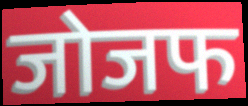
जोजफ